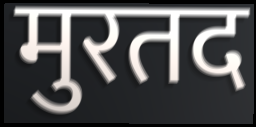
मुरतद